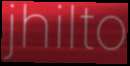
jhilto